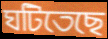
ঘটিতেছে